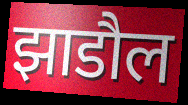
झाडौल